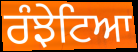
ਰੰਝੇਟਿਆ